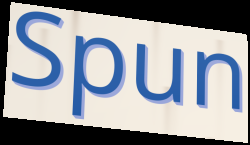
Spun